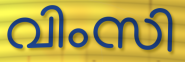
വിംസി